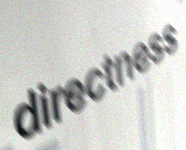
directness